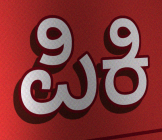
ಪಿಕಿ